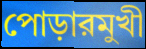
পোড়ারমুখী